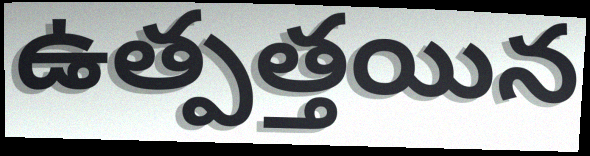
ఉత్పత్తయిన